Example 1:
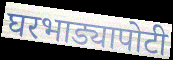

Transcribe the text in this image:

घरभाड्यापोटी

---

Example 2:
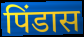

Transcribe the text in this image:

पिंडास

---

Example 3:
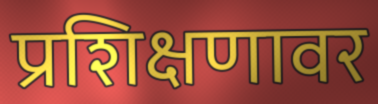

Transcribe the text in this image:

प्रशिक्षणावर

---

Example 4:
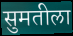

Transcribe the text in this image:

सुमतीला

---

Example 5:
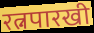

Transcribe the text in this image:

रत्नपारखी